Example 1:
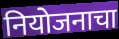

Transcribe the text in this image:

नियोजनाचा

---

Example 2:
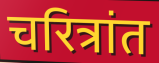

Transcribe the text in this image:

चरित्रांत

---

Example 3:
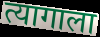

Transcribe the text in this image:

त्यागाला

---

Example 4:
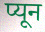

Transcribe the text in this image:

प्यून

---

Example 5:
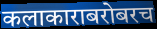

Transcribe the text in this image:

कलाकाराबरोबरच